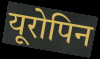
यूरोपिन